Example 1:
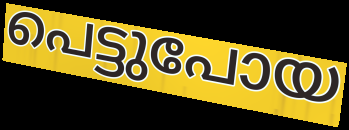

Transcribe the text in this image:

പെട്ടുപോയ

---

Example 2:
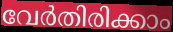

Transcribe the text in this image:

വേർതിരിക്കാം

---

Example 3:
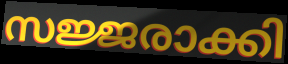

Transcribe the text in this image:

സജ്ജരാക്കി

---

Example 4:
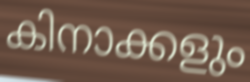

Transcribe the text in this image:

കിനാക്കളും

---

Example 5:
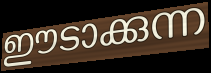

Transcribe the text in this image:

ഈടാക്കുന്ന